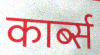
कार्ब्स